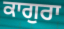
ਕਾਗੁਰਾ